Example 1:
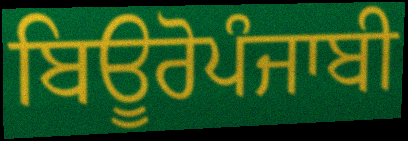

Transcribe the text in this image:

ਬਿਊਰੋਪੰਜਾਬੀ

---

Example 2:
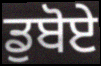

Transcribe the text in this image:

ਡੁਬੋਏ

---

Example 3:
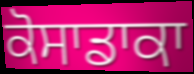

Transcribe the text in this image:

ਕੋਸਾਡਾਕਾ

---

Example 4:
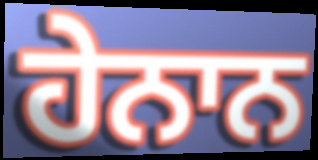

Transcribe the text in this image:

ਹੇਨਾਨ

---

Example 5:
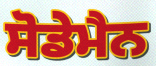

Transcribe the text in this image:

ਸੋਡੇਮੈਨ